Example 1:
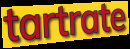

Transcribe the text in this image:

tartrate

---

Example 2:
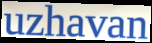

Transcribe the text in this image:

uzhavan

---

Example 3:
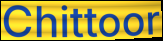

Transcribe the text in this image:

Chittoor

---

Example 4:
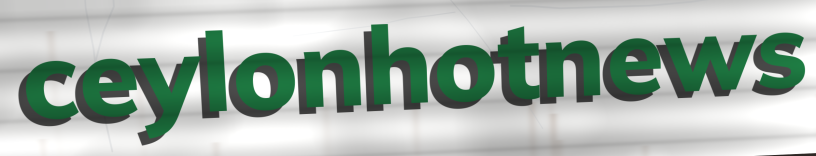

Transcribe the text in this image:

ceylonhotnews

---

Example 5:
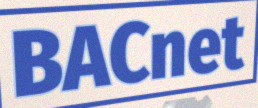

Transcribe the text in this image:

BACnet